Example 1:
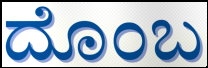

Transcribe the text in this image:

ದೊಂಬ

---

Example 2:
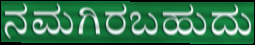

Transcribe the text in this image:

ನಮಗಿರಬಹುದು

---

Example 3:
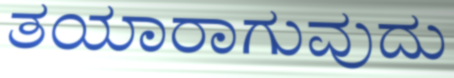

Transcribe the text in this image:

ತಯಾರಾಗುವುದು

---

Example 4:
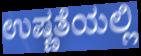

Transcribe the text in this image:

ಉಷ್ಣತೆಯಲ್ಲಿ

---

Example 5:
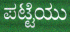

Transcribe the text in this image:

ಪಟ್ಟೆಯು